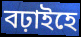
বঢ়াইহে